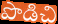
పొడిచి